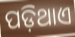
ପଡ଼ିଥାଏ